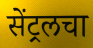
सेंट्रलचा